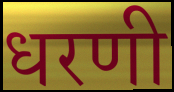
धरणी